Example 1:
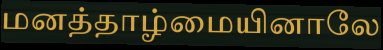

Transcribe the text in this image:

மனத்தாழ்மையினாலே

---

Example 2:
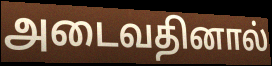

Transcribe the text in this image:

அடைவதினால்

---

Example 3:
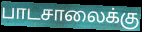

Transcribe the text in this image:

பாடசாலைக்கு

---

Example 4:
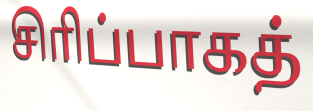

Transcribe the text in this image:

சிரிப்பாகத்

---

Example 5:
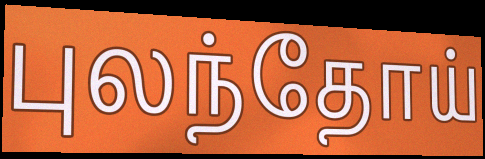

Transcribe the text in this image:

புலந்தோய்